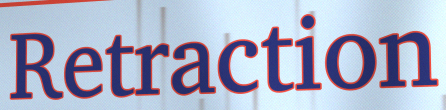
Retraction